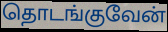
தொடங்குவேன்